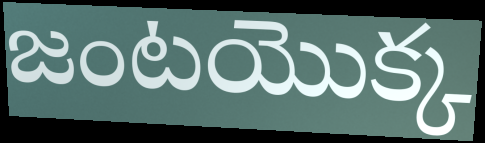
జంటయొక్క